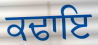
ਕਢਾਇ